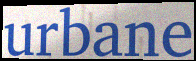
urbane